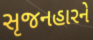
સૃજનહારને